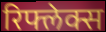
रिफ्लेक्स